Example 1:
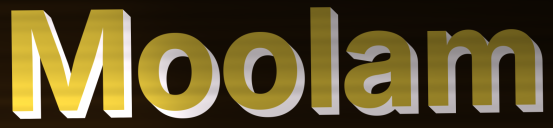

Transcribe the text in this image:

Moolam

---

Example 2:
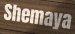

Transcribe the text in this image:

Shemaya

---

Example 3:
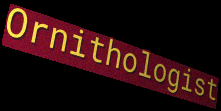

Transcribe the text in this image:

Ornithologist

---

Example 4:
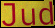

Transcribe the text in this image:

Jud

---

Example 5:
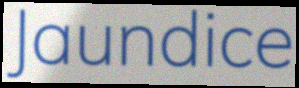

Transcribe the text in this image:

Jaundice